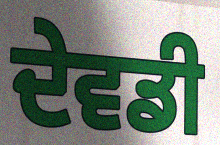
ਦੇਵਡੀ